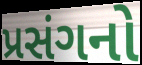
પ્રસંગનો